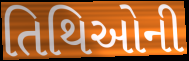
તિથિઓની